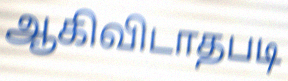
ஆகிவிடாதபடி